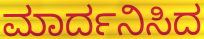
ಮಾರ್ದನಿಸಿದ